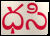
ధసి